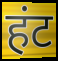
हंट